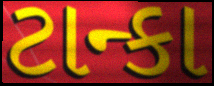
ટાન્કા